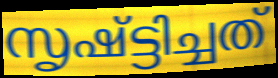
സൃഷ്ട്ടിച്ചത്